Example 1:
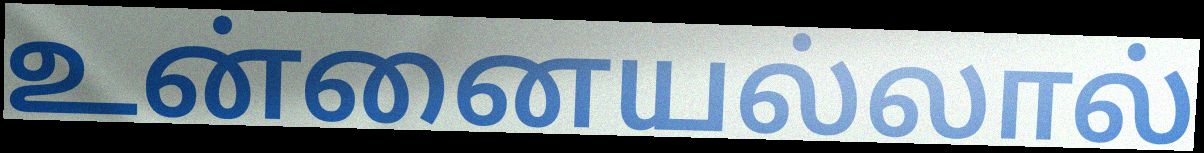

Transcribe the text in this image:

உன்னையல்லால்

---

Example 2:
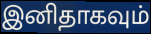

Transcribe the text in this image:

இனிதாகவும்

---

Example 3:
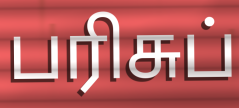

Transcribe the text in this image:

பரிசுப்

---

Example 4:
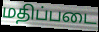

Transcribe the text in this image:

மதிப்படை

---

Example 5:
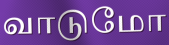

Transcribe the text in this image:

வாடுமோ